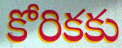
కోరికకు